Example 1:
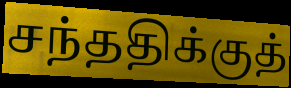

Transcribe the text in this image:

சந்ததிக்குத்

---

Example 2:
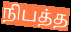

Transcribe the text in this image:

நிபத்த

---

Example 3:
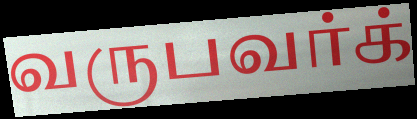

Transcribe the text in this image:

வருபவர்க்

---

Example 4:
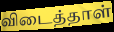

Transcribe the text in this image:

விடைத்தாள்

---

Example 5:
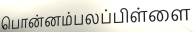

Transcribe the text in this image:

பொன்னம்பலப்பிள்ளை